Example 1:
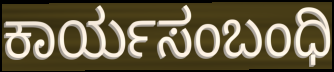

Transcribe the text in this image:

ಕಾರ್ಯಸಂಬಂಧಿ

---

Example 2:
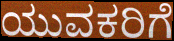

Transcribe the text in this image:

ಯುವಕರಿಗೆ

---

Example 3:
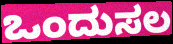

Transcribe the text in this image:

ಒಂದುಸಲ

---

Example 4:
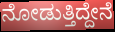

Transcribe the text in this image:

ನೋಡುತ್ತಿದ್ದೇನೆ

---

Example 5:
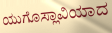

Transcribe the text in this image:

ಯುಗೊಸ್ಲಾವಿಯಾದ